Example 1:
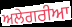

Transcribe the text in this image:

ਅਲੇਗਰੀਆ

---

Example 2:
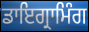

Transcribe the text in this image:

ਡਾਇਗ੍ਰਾਮਿੰਗ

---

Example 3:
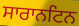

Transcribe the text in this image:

ਸਾਰਾਨਟਿਨ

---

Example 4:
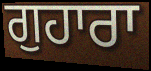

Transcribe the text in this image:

ਗੁਹਾਰਾ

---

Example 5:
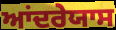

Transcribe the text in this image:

ਆਂਦਰੇਯਾਸ